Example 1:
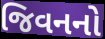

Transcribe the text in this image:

જિવનનો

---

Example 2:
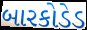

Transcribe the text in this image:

બારકોડેડ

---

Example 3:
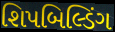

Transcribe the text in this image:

શિપબિલ્ડિંગ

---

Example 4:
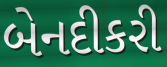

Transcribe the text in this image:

બેનદીકરી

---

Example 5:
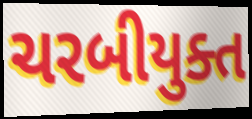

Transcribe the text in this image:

ચરબીયુક્ત